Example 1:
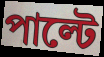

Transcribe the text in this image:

পাল্টে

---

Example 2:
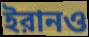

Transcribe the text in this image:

ইরানও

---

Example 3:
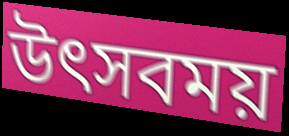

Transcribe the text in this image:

উৎসবময়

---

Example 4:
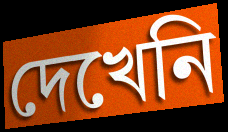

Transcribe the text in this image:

দেখেনি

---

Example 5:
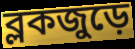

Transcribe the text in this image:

ব্লকজুড়ে